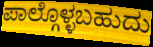
ಪಾಲ್ಗೊಳ್ಳಬಹುದು